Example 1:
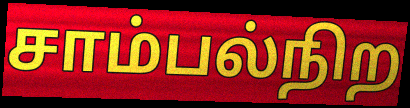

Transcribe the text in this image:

சாம்பல்நிற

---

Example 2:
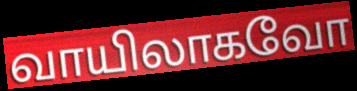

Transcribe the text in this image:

வாயிலாகவோ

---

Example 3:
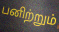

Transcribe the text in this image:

பனிற்றும்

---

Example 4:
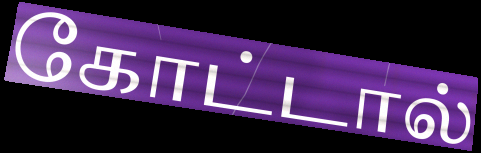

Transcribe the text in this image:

கோட்டால்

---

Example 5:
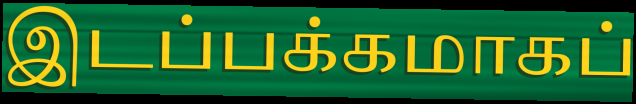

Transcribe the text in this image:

இடப்பக்கமாகப்